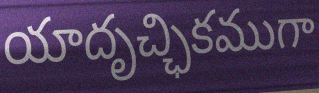
యాదృచ్ఛికముగా